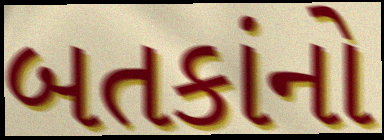
બતકાંનો